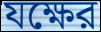
যক্ষের